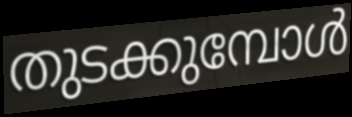
തുടക്കുമ്പോൾ